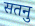
सतनु